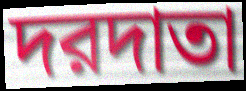
দরদাতা